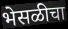
भेसळीचा